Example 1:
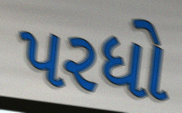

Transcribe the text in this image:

પરધો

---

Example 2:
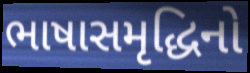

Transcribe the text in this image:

ભાષાસમૃદ્ધિનો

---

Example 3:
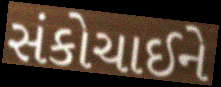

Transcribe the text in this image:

સંકોચાઈને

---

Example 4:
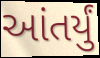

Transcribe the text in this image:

આંતર્યું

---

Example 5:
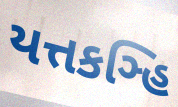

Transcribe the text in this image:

યત્તકઞ્હિ